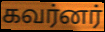
கவர்னர்